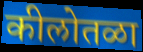
कीलोतळा